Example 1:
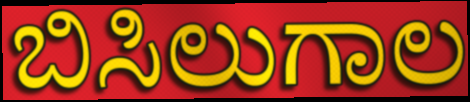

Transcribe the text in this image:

ಬಿಸಿಲುಗಾಲ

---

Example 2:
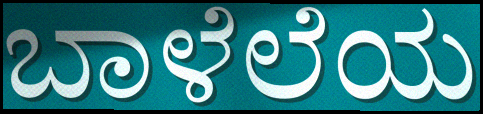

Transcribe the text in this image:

ಬಾಳೆಲೆಯ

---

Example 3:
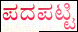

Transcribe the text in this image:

ಪದಪಟ್ಟಿ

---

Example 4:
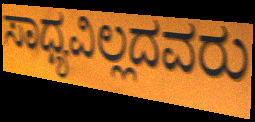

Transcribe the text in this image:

ಸಾಧ್ಯವಿಲ್ಲದವರು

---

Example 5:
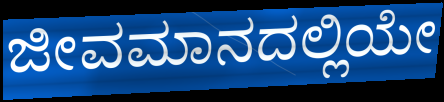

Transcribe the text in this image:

ಜೀವಮಾನದಲ್ಲಿಯೇ